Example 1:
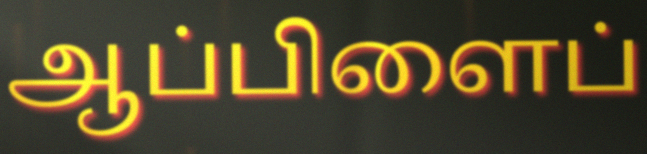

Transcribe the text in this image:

ஆப்பிளைப்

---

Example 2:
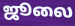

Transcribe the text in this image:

ஜூலை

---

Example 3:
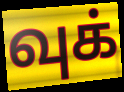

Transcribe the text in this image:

வுக்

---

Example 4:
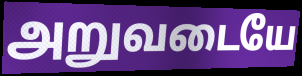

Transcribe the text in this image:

அறுவடையே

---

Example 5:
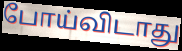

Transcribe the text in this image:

போய்விடாது